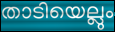
താടിയെല്ലും